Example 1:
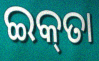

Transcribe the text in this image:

ଇକ୍‌ତା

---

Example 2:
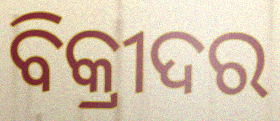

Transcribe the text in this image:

ବିକ୍ରୀଦର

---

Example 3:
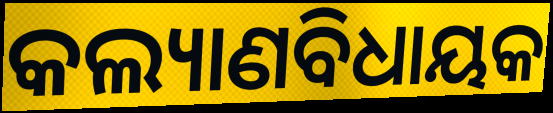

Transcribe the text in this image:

କଲ୍ୟାଣବିଧାୟକ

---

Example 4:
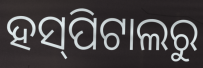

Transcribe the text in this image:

ହସ୍‌ପିଟାଲରୁ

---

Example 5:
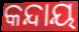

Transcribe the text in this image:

କନ୍ଦାୟ